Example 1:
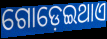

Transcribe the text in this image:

ଗୋଡ଼େଇଥାଏ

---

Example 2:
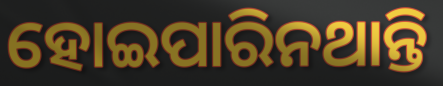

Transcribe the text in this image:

ହୋଇପାରିନଥାନ୍ତି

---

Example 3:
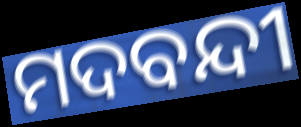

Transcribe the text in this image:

ମଦବନ୍ଦୀ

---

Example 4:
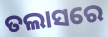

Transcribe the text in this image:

ତଲାସରେ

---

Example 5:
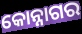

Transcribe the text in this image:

କୋନ୍ନାଗର